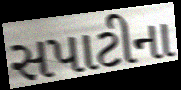
સપાટીના